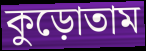
কুড়োতাম